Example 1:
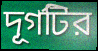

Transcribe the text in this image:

দূর্গটির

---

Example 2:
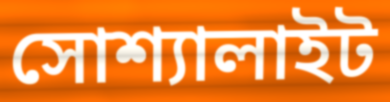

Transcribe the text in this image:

সোশ্যালাইট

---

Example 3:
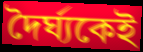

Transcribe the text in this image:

দৈর্ঘ্যকেই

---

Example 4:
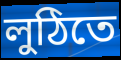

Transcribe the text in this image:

লুঠিতে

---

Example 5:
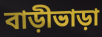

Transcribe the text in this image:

বাড়ীভাড়া